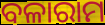
ବଳାରାମ